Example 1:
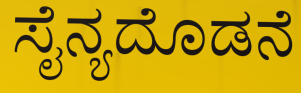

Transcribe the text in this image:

ಸೈನ್ಯದೊಡನೆ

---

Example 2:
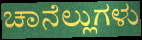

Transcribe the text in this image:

ಚಾನೆಲ್ಲುಗಳು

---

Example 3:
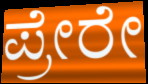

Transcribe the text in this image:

ಪ್ರೇರೇ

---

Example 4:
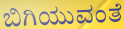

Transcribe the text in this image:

ಬಿಗಿಯುವಂತೆ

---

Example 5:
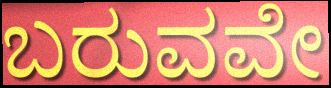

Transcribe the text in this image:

ಬರುವವೇ